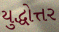
યુદ્ધોત્તર